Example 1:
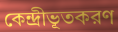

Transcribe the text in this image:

কেন্দ্রীভূতকরণ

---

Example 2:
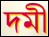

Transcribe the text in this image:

দমী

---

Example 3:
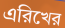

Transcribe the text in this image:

এরিখের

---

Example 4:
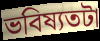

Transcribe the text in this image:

ভবিষ্যতটা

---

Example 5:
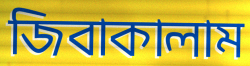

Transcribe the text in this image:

জিবাকালাম